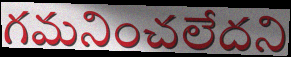
గమనించలేదని